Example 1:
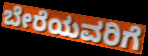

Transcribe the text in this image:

ಬೇರೆಯವರಿಗೆ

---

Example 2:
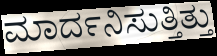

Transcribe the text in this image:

ಮಾರ್ದನಿಸುತ್ತಿತ್ತು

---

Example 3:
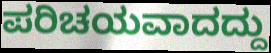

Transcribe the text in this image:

ಪರಿಚಯವಾದದ್ದು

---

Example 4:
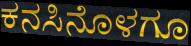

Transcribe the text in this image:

ಕನಸಿನೊಳಗೂ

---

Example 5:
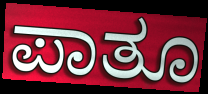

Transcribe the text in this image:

ಪಾತೂ